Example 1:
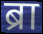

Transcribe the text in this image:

ब्रा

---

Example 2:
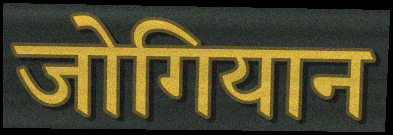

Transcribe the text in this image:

जोगियान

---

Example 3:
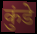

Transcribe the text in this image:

कुंडे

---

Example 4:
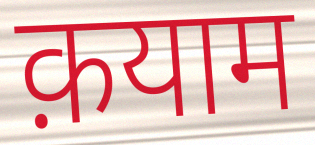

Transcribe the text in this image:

क़याम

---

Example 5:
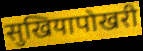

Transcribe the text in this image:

सुखियापोखरी